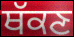
ਥੱਕਣ